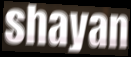
shayan